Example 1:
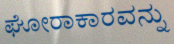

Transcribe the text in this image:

ಘೋರಾಕಾರವನ್ನು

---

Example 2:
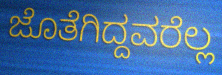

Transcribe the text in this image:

ಜೊತೆಗಿದ್ದವರೆಲ್ಲ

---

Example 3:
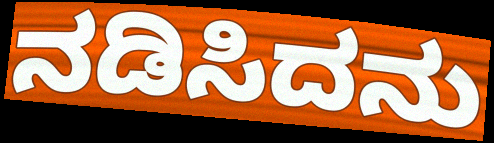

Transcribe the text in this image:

ನಡಿಸಿದನು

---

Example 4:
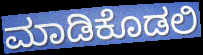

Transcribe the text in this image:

ಮಾಡಿಕೊಡಲಿ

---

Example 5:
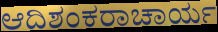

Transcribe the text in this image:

ಆದಿಶಂಕರಾಚಾರ್ಯ